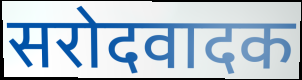
सरोदवादक